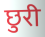
छुरी